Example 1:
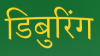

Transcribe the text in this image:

डिबुरिंग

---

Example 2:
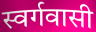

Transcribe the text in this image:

स्‍वर्गवासी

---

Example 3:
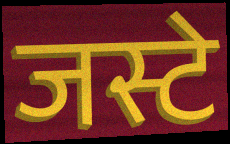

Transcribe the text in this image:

जस्टे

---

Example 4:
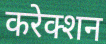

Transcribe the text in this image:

करेक्शन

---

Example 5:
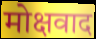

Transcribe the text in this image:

मोक्षवाद